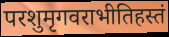
परशुमृगवराभीतिहस्तं